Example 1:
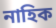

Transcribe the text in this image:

নাহিক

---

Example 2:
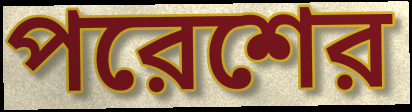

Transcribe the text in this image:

পরেশের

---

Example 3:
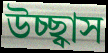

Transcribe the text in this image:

উচ্ছ্বাস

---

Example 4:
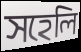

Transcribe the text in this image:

সহেলি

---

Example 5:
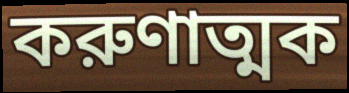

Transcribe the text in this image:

করুণাত্মক